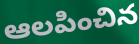
ఆలపించిన